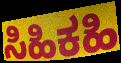
ಸಿಹಿಕಹಿ